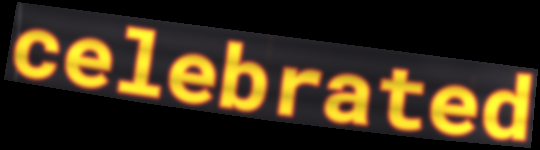
celebrated